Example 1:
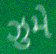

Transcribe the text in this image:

ઝુમે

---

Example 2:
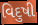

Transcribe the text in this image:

વિદુષી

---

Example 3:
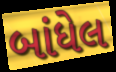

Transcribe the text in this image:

બાંધેલ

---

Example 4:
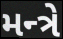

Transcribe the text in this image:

મન્ત્રે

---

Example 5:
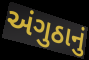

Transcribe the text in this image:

અંગુઠાનું